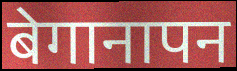
बेगानापन